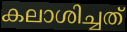
കലാശിച്ചത്